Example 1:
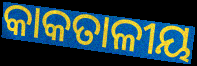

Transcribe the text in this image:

କାକତାଳୀୟ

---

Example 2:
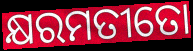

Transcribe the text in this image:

କ୍ଷରମତୀତୋ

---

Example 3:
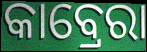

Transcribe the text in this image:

କାବ୍ରେରା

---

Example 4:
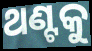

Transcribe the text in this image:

ଥଣ୍ଟକୁ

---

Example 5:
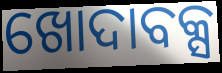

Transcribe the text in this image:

ଖୋଦାବକ୍ସ